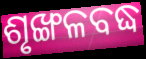
ଶୃଙ୍ଖଳବଦ୍ଧ